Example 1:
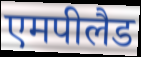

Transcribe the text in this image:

एमपीलैड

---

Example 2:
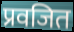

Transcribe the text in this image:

प्रवजित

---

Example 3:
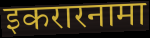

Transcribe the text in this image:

इकरारनामा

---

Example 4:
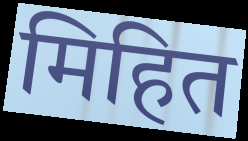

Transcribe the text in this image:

मिहित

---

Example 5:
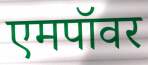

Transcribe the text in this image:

एमपॉवर